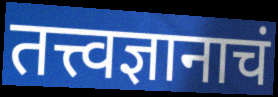
तत्त्वज्ञानाचं